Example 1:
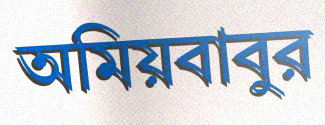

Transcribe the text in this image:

অমিয়বাবুর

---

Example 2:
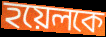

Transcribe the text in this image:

হয়েলকে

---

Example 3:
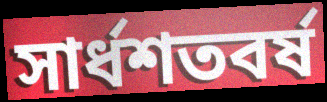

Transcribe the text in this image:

সার্ধশতবর্ষ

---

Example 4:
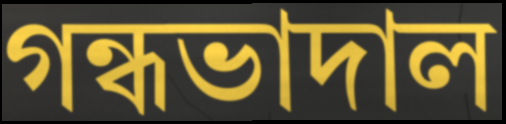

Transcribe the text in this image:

গন্ধভাদাল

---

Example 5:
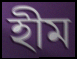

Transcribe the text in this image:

হীম